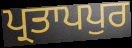
ਪ੍ਰਤਾਪਪੁਰ